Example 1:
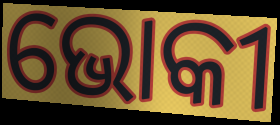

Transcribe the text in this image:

ଭୋକୀ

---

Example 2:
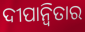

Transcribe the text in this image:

ଦୀପାନ୍ୱିତାର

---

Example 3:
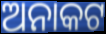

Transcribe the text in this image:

ଅନାକଟ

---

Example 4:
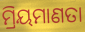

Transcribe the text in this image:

ମ୍ରିୟମାଣତା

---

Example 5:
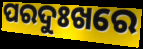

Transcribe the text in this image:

ପରଦୁଃଖରେ